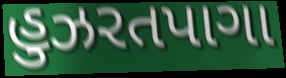
હુઝરતપાગા